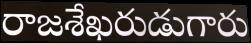
రాజశేఖరుడుగారు